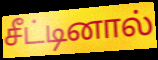
சீட்டினால்